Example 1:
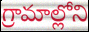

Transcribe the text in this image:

గ్రామాల్లోని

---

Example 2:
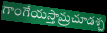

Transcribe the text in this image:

గాంగేయస్తామ్రచూడశ్చ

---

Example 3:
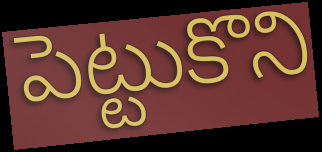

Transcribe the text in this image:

పెట్టుకొని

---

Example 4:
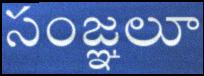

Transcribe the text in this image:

సంజ్ఞలూ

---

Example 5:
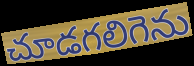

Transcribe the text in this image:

చూడగలిగెను